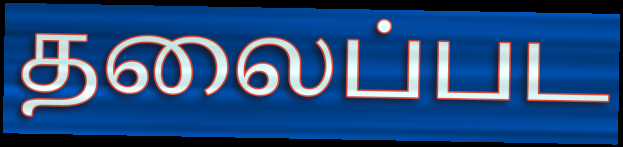
தலைப்பட